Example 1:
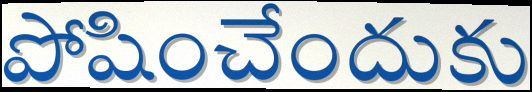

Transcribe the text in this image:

పోషించేందుకు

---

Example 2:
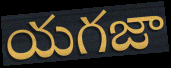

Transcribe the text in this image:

యగజా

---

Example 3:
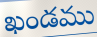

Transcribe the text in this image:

ఖండము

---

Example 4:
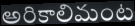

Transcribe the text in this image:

అరికాలిమంట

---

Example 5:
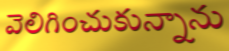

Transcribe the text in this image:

వెలిగించుకున్నాను